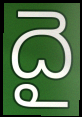
దై